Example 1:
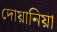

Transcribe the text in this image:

দোয়ানিয়া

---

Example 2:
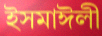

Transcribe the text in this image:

ইসমাঈলী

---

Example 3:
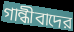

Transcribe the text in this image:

গান্ধীবাদের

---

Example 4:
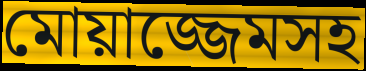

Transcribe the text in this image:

মোয়াজ্জেমসহ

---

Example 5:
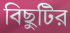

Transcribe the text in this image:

বিছুটির